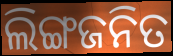
ଲିଙ୍ଗଜନିତ